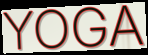
YOGA